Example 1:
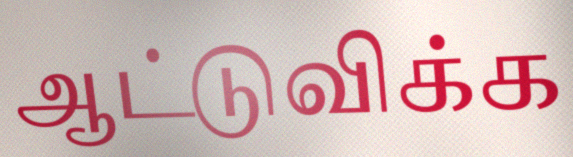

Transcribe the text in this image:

ஆட்டுவிக்க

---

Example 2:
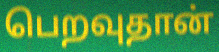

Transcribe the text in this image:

பெறவுதான்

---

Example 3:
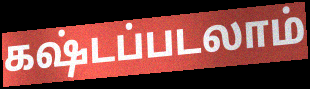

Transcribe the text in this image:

கஷ்டப்படலாம்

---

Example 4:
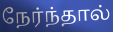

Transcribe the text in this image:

நேர்ந்தால்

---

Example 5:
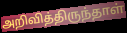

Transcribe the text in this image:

அறிவித்திருந்தாள்